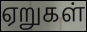
ஏறுகள்